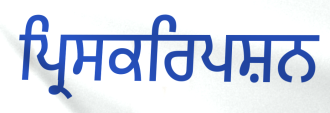
ਪ੍ਰਿਸਕਰਿਪਸ਼ਨ